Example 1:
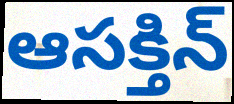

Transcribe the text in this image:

ఆసక్తిన్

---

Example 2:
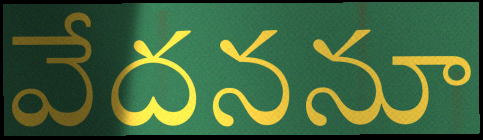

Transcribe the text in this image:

వేదననూ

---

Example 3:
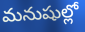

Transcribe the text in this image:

మనుషుల్లో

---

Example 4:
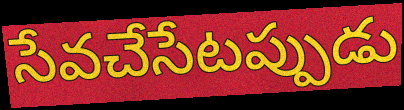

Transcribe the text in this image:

సేవచేసేటప్పుడు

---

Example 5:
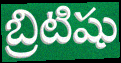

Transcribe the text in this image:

బ్రిటిషు